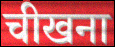
चीखना